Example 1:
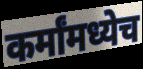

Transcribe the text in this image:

कर्मांमध्येच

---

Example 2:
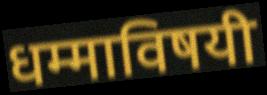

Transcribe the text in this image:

धम्माविषयी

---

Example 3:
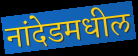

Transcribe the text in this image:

नांदेडमधील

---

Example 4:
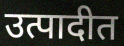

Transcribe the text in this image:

उत्पादीत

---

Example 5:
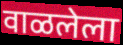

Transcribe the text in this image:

वाळलेला